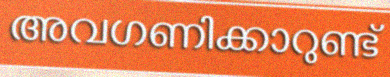
അവഗണിക്കാറുണ്ട്